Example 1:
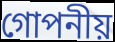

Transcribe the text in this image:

গোপনীয়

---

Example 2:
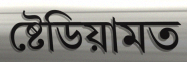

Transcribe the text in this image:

ষ্টেডিয়ামত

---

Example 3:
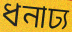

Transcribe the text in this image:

ধনাঢ্য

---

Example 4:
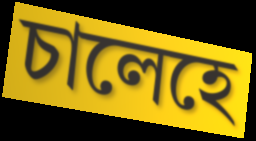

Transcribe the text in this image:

চালেহে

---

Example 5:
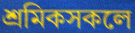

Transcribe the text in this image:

শ্ৰমিকসকলে